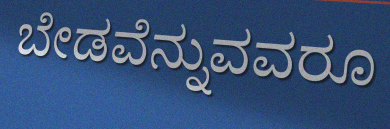
ಬೇಡವೆನ್ನುವವರೂ